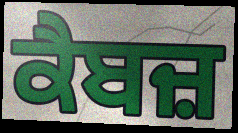
ਕੈਬਜ਼